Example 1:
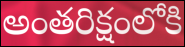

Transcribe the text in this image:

అంతరిక్షంలోకి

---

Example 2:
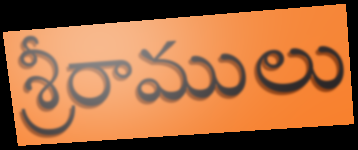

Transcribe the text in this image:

శ్రీరాములు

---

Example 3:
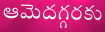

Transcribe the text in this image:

ఆమెదగ్గరకు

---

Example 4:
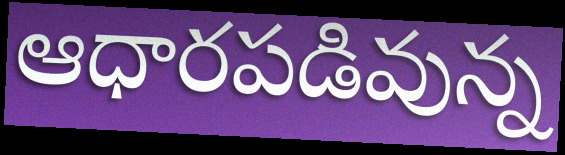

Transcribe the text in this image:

ఆధారపడివున్న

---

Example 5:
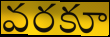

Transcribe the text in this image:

వరకూ